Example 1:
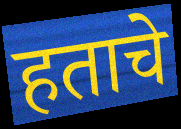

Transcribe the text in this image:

हताचे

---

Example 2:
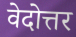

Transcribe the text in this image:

वेदोत्तर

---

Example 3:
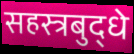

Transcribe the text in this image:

सहस्त्रबुद्धे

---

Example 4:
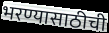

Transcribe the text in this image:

भरण्यासाठीची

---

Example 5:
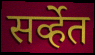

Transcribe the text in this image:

सर्व्हेत